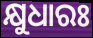
କ୍ଷୁଧାରଃ